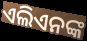
ଏଲିଏନଙ୍କ